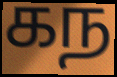
கந